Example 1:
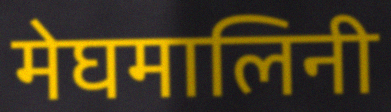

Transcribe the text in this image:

मेघमालिनी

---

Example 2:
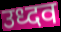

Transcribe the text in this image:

उध्दव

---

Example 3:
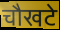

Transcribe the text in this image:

चौखटे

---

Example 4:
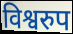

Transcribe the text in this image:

विश्वरुप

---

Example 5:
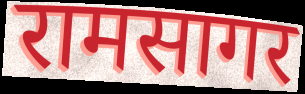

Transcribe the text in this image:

रामसागर